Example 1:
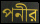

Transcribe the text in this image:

পনীর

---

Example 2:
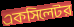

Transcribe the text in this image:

একসিলেটর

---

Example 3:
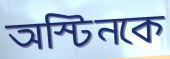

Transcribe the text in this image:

অস্টিনকে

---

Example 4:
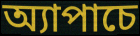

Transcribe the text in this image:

অ্যাপাচে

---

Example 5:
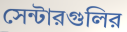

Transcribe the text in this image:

সেন্টারগুলির